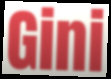
Gini